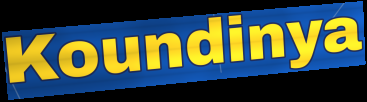
Koundinya